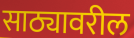
साठ्यावरील